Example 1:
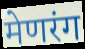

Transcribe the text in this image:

मेणरंग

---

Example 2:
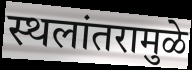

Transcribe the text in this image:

स्थलांतरामुळे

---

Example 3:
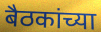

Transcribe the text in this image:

बैठकांच्या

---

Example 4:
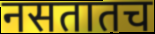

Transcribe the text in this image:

नसतातच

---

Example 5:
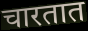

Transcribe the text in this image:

चारतात